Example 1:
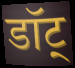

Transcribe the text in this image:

डॉट्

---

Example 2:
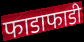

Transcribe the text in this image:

फाडाफाडी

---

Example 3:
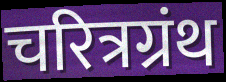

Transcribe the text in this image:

चरित्रग्रंथ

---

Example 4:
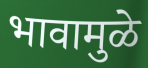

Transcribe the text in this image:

भावामुळे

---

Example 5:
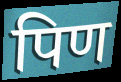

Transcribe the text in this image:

पिण